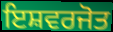
ਇਸ਼ਵਰਜੋਤ